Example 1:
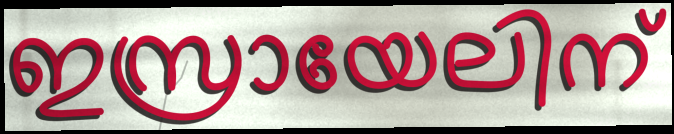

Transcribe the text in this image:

ഇസ്രായേലിന്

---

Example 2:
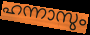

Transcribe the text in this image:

ഹന്നാസും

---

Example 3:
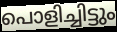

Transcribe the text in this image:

പൊളിച്ചിട്ടും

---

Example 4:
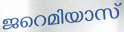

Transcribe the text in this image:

ജറെമിയാസ്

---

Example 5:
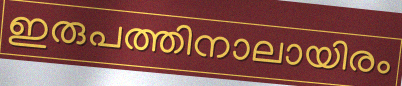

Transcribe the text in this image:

ഇരുപത്തിനാലായിരം